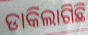
ଡାକିଲାଗିଛି